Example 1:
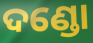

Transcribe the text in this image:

ଦଣ୍ଡୋ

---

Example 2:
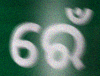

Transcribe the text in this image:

ରେଁ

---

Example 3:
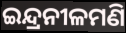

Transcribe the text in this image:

ଇନ୍ଦ୍ରନୀଳମଣି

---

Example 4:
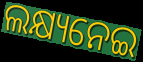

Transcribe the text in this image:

ଲକ୍ଷ୍ୟନେଇ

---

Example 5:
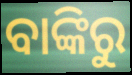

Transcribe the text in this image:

ବାଙ୍କିରୁ